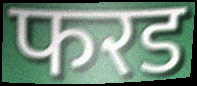
फरड